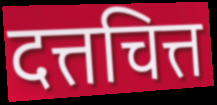
दत्तचित्त